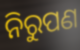
ନିରୁପଣ